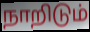
நாறிடும்